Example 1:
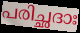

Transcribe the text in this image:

പരിച്ഛദാഃ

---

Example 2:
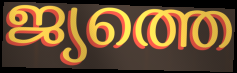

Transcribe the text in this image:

ജ്യത്തെ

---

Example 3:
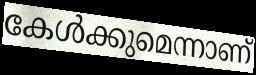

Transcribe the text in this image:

കേൾക്കുമെന്നാണ്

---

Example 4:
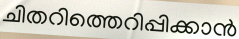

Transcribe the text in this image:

ചിതറിത്തെറിപ്പിക്കാൻ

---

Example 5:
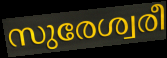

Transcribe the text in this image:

സുരേശ്വരീ